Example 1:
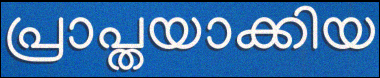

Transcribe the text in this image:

പ്രാപ്തയാക്കിയ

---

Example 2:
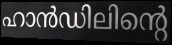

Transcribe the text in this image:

ഹാൻഡിലിന്റെ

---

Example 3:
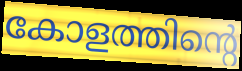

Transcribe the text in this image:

കോളത്തിന്റെ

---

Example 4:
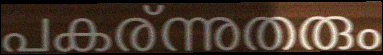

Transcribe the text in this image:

പകര്ന്നുതരും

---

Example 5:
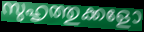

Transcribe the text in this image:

സുഹൃത്തുക്കളോ